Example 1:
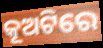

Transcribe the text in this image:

କୂଅଟିରେ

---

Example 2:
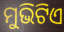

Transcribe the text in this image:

ମୁଭିଟିଏ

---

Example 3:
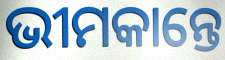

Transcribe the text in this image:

ଭୀମକାନ୍ତେ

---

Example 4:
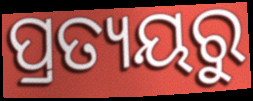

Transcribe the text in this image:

ପ୍ରତ୍ୟୟରୁ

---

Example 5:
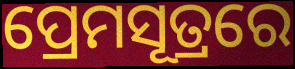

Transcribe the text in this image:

ପ୍ରେମସୂତ୍ରରେ